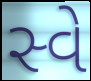
સ્વે